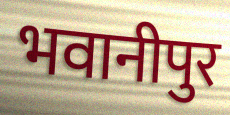
भवानीपुर